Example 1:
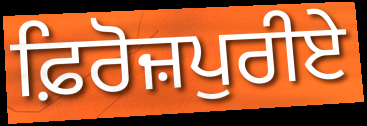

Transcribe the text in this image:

ਫ਼ਿਰੋਜ਼ਪੁਰੀਏ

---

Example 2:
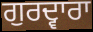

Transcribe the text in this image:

ਗੁਰਦ੍ਵਾਰਾ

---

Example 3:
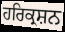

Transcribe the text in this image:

ਹਰਿਕ੍ਰਸ਼ਨ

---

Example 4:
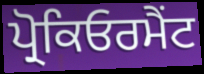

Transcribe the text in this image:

ਪ੍ਰੋਕਿਓਰਮੈਂਟ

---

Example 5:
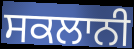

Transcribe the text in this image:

ਸਕਲਾਨੀ